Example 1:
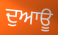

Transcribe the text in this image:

ਦੁਆਊ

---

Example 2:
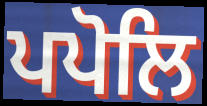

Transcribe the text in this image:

ਪਪੋਲਿ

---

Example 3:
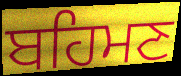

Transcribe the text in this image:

ਬਹਿਮਣ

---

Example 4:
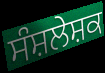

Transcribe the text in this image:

ਸੰਸ਼ਲੇਸ਼ਕ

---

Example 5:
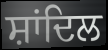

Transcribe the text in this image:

ਸ਼ਾਂਦਿਲ